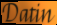
Datin